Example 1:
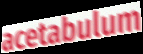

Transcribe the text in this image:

acetabulum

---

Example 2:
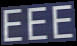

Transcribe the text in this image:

EEE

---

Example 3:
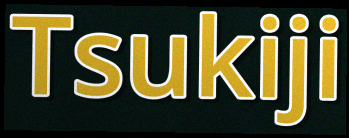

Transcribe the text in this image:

Tsukiji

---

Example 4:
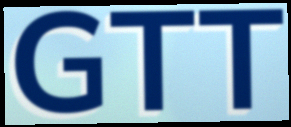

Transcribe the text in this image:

GTT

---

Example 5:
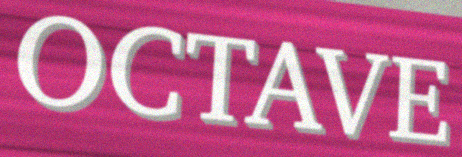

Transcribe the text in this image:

OCTAVE